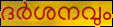
ദർശനവും